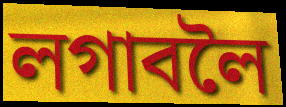
লগাবলৈ